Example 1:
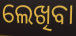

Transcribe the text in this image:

ଲେଖିବା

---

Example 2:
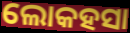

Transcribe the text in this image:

ଲୋକହସା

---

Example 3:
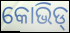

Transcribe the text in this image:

କୋଭିଡ୍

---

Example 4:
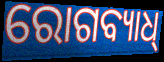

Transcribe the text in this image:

ରୋଗବ୍ୟାଧ୍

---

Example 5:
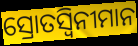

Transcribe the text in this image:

ସ୍ରୋତସ୍ୱିନୀମାନ